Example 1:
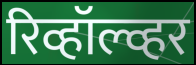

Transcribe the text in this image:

रिव्हॉल्व्हर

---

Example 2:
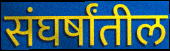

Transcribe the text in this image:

संघर्षांतील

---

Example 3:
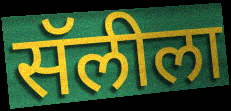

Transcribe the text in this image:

सॅलीला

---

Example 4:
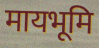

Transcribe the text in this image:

मायभूमि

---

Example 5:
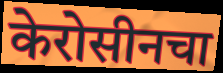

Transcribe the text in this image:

केरोसीनचा